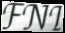
FNI